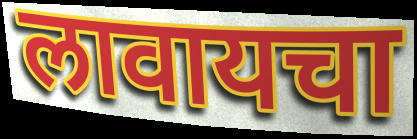
लावायचा